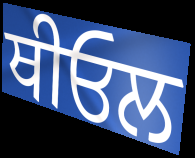
ਥੀਓਲ